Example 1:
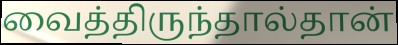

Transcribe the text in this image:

வைத்திருந்தால்தான்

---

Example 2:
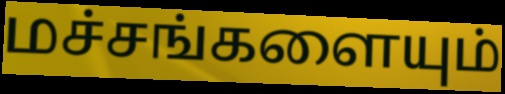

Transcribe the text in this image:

மச்சங்களையும்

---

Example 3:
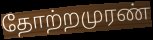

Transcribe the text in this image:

தோற்றமுரண்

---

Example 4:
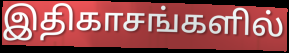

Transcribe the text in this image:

இதிகாசங்களில்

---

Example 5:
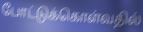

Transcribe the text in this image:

போட்டுக்கொள்வதில்